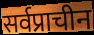
सर्वप्राचीन